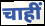
चाहीं